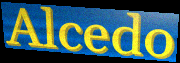
Alcedo